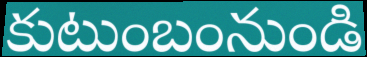
కుటుంబంనుండి